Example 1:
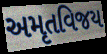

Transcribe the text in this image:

અમૃતવિજય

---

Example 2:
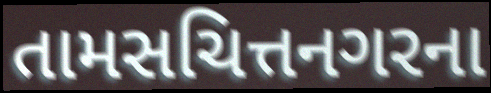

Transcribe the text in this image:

તામસચિત્તનગરના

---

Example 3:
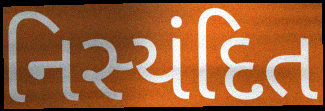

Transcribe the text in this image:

નિસ્યંદિત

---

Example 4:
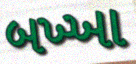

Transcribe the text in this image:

બખ્ખા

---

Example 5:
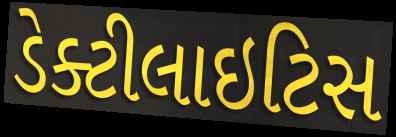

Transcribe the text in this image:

ડેક્ટીલાઇટિસ